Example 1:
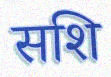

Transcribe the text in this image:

सशि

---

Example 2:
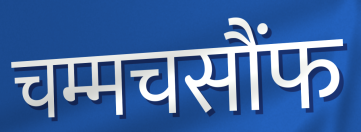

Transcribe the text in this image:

चम्मचसौंफ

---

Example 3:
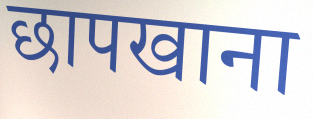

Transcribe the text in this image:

छापखाना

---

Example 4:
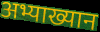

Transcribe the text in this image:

अभ्याख्यान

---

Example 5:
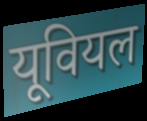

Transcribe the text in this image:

यूवियल